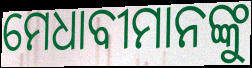
ମେଧାବୀମାନଙ୍କୁ